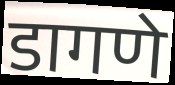
डागणे